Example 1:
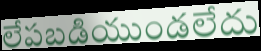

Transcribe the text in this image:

లేపబడియుండలేదు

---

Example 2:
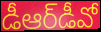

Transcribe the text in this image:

డీఆర్‌డీవో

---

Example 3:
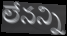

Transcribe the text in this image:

లేనన్ని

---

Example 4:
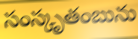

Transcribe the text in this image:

సంస్కృతంబును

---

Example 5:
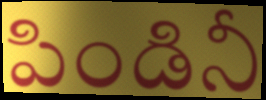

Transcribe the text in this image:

పిండినీ